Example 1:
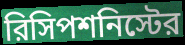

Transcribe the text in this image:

রিসিপশনিস্টের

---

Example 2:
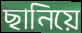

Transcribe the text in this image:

ছানিয়ে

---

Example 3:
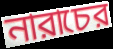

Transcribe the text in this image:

নারাচের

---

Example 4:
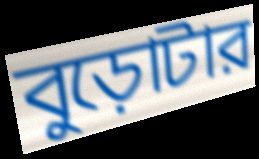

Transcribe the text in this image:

বুড়োটার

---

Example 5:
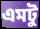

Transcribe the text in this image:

এমটু